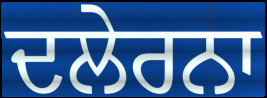
ਦਲੇਰਨਾ